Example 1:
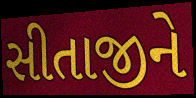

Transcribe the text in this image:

સીતાજીને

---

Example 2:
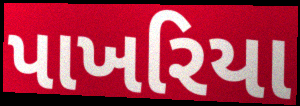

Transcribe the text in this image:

પાખરિયા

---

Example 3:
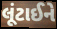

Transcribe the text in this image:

લૂંટાઈને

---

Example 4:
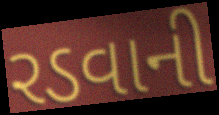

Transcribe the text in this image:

રડવાની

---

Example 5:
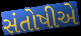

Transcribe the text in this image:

સંતોષીએ